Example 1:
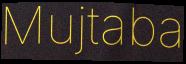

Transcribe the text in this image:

Mujtaba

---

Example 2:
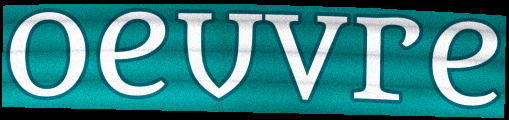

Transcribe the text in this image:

oeuvre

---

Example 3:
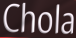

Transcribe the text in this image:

Chola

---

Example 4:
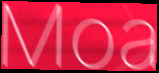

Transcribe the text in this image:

Moa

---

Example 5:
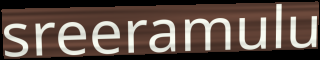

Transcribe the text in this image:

sreeramulu